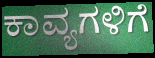
ಕಾವ್ಯಗಳಿಗೆ